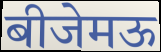
बीजेमऊ